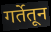
गर्तेतून